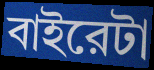
বাইরেটা